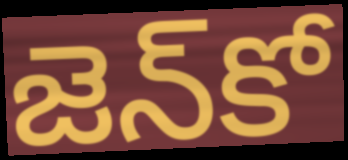
జెన్‌కో